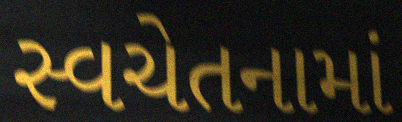
સ્વચેતનામાં